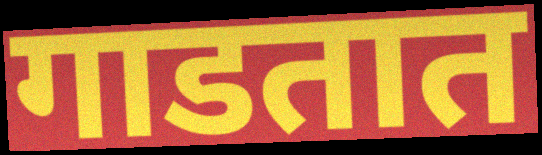
गाडतात